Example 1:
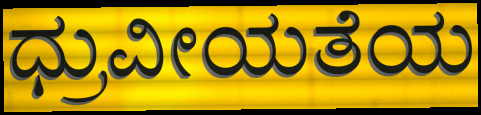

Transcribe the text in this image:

ಧ್ರುವೀಯತೆಯ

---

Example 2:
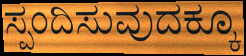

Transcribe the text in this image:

ಸ್ಪಂದಿಸುವುದಕ್ಕೂ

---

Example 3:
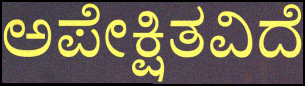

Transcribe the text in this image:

ಅಪೇಕ್ಷಿತವಿದೆ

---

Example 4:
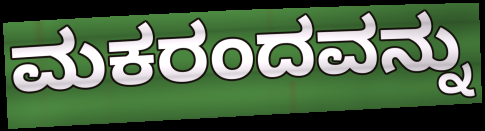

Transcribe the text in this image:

ಮಕರಂದವನ್ನು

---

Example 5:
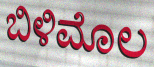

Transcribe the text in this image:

ಬಿಳಿಮೊಲ